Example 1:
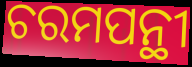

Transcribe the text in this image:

ଚରମପନ୍ଥୀ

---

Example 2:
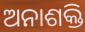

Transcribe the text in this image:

ଅନାଶକ୍ତି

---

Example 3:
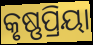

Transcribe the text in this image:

କୃଷ୍ଣପ୍ରିୟା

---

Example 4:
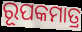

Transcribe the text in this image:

ରୂପକମାତ୍ର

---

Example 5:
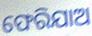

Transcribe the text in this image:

ଫେରିଯାଅ